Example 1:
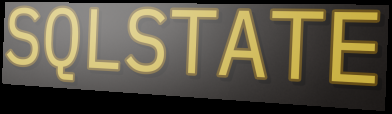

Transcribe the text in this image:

SQLSTATE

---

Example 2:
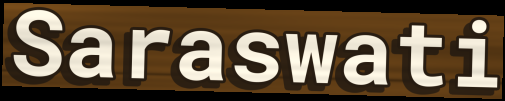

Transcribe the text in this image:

Saraswati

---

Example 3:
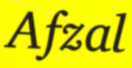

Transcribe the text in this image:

Afzal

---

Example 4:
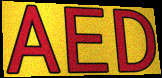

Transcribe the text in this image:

AED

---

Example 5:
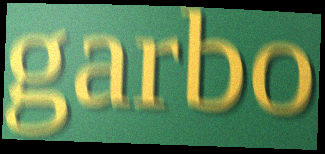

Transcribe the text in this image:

garbo